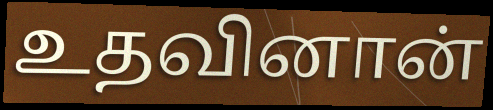
உதவினான்